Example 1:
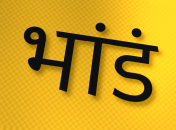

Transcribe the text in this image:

भांडं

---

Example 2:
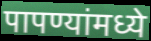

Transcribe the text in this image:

पापण्यांमध्ये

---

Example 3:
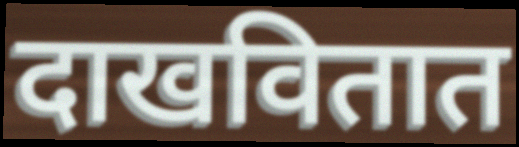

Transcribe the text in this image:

दाखवितात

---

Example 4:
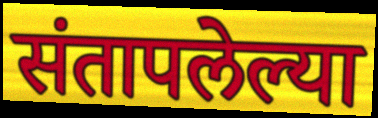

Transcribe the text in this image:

संतापलेल्या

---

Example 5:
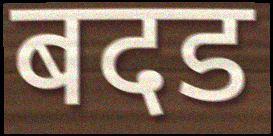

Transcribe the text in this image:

बदड